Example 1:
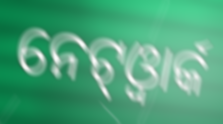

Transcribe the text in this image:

ନେଟ୍ଓ୍ବାର୍କ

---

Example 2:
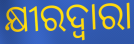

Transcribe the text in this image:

କ୍ଷୀରଦ୍ଵାରା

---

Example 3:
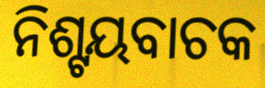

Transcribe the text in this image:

ନିଶ୍ଟୟବାଚକ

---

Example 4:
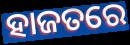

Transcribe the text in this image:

ହାଜତରେ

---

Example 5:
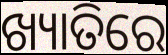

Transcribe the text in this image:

ଖ୍ୟାତିରେ